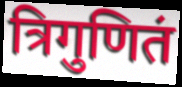
त्रिगुणितं